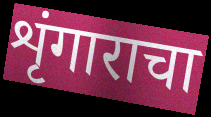
शृंगाराचा